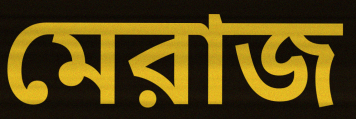
মেরাজ